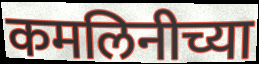
कमलिनीच्या